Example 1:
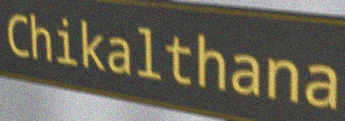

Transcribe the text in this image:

Chikalthana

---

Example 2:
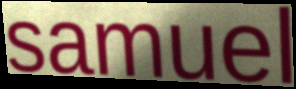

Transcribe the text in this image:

samuel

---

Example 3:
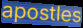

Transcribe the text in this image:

apostles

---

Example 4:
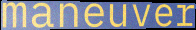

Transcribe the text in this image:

maneuver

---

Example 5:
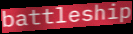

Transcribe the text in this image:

battleship